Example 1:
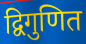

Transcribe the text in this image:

द्विगुणित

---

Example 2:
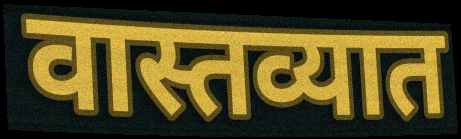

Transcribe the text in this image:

वास्तव्यात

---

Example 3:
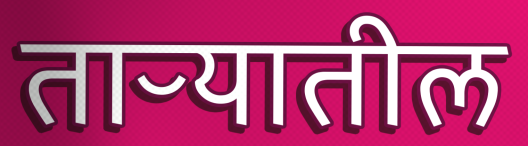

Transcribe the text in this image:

ताऱ्यातील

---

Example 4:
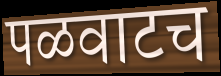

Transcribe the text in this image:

पळवाटच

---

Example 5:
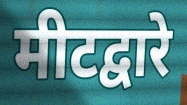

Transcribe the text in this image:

मीटद्वारे